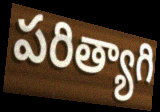
పరిత్యాగి